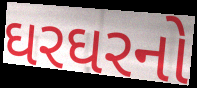
ઘરઘરનો